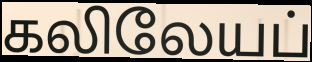
கலிலேயப்